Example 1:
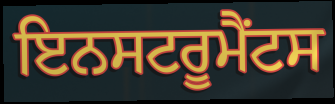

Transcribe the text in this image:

ਇਨਸਟਰੂਮੈਂਟਸ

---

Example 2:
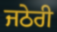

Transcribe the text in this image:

ਜਠੇਰੀ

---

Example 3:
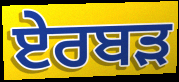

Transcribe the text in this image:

ਏਰਬੜ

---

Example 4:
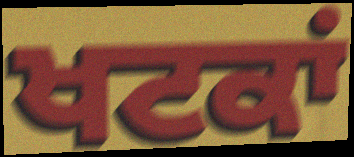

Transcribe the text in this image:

ਖਟਕਾਂ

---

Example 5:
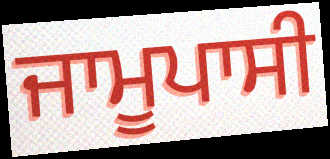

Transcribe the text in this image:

ਜਾਮੂਪਾਸੀ